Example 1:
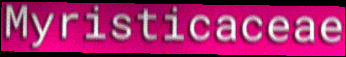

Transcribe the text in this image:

Myristicaceae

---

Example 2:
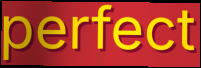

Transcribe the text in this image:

perfect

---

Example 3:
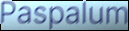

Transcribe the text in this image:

Paspalum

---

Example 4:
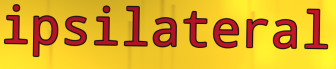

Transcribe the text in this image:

ipsilateral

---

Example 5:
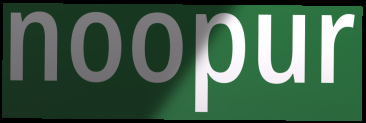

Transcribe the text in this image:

noopur